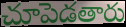
చూపెడతారు